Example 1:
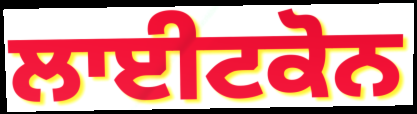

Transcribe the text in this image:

ਲਾਈਟਕੋਨ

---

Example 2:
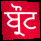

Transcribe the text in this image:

ਬ੍ਰੌਟ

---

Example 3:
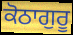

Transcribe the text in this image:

ਕੋਠਾਗੁਰੂ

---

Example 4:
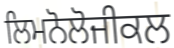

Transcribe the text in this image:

ਲਿਮਨੋਲੋਜੀਕਲ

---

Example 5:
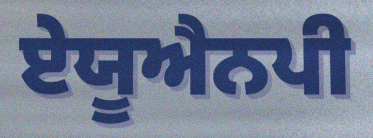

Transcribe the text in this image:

ਏਯੂਐਨਪੀ